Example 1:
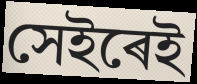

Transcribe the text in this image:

সেইৰেই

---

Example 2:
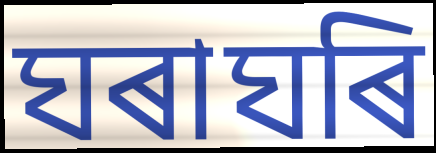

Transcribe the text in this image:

ঘৰাঘৰি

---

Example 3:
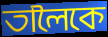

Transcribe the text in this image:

তালৈকে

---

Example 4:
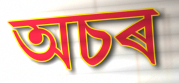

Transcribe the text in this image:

অচৰ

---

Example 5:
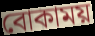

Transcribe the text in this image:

বোকাময়